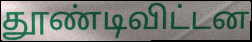
தூண்டிவிட்டன